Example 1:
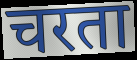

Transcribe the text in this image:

चरता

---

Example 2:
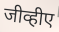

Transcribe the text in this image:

जीव्हीए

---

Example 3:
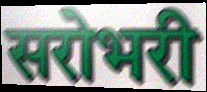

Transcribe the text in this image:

सरोभरी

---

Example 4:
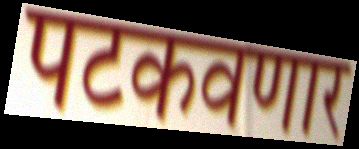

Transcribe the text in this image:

पटकवणार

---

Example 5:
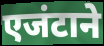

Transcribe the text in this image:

एजंटाने